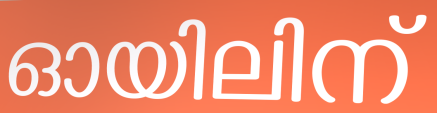
ഓയിലിന്